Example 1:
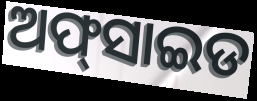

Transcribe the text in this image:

ଅଫ୍‍ସାଇଡ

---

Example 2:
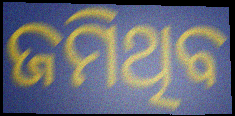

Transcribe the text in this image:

ଜମିଥିବ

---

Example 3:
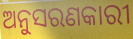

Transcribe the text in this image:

ଅନୁସରଣକାରୀ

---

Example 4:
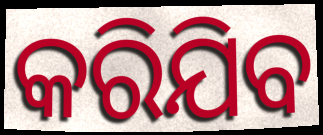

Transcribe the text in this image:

କରିଯିବ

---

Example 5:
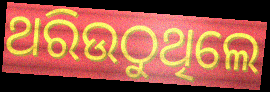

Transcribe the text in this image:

ଥରିଉଠୁଥିଲେ